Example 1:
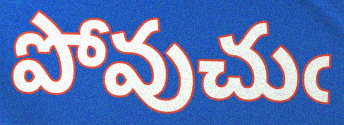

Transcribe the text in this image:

పోవుచుఁ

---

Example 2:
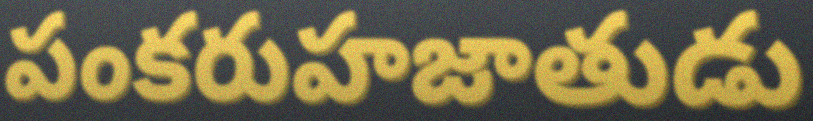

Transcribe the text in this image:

పంకరుహజాతుడు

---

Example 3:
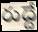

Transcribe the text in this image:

రుద్దే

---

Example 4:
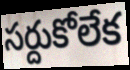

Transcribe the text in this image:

సర్దుకోలేక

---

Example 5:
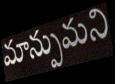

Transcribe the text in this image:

మాన్పుమని